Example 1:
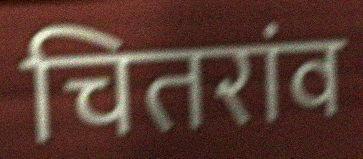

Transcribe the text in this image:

चितरांव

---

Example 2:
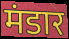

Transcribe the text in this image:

मंडार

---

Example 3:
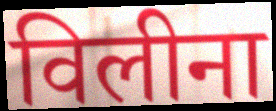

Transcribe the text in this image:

विलीना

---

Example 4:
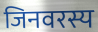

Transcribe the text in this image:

जिनवरस्य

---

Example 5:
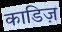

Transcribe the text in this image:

काडिज़